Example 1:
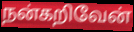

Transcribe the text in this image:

நன்கறிவேன்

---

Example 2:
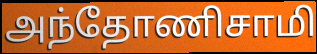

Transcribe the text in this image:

அந்தோணிசாமி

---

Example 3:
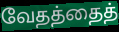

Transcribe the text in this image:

வேதத்தைத்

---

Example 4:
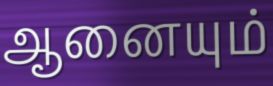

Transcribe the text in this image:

ஆனையும்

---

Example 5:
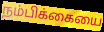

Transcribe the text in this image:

நம்பிக்கையை